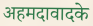
अहमदावादके